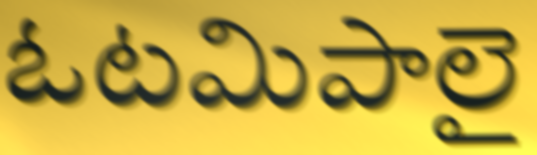
ఓటమిపాలై